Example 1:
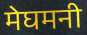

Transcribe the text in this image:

मेघमनी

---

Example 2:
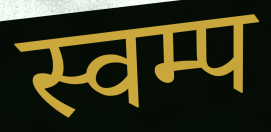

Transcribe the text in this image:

स्वम्प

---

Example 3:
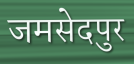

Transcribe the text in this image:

जमसेदपुर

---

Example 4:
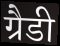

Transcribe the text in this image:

ग्रैडी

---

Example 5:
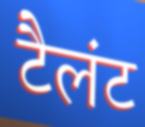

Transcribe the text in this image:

टैलंट